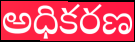
అధికరణ